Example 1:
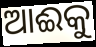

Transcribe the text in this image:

ଆଈକୁ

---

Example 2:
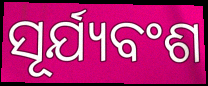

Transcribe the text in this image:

ସୂର୍ଯ୍ୟବଂଶ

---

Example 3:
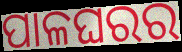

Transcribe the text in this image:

ପାଳଘରର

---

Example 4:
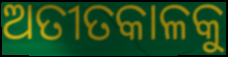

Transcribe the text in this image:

ଅତୀତକାଳକୁ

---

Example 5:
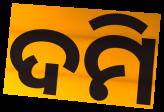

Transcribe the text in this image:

ଦମି